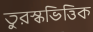
তুরস্কভিত্তিক